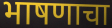
भाषणाचा